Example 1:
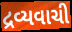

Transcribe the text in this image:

દ્રવ્યવાચી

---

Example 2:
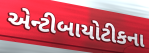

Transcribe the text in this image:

એન્ટીબાયોટીકના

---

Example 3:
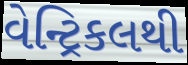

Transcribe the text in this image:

વેન્ટ્રિકલથી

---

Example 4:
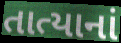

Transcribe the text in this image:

તાત્યાનાં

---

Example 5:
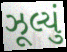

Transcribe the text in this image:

ઝૂલ્યું